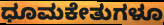
ಧೂಮಕೇತುಗಳೂ